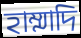
হাম্মাদি